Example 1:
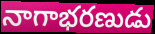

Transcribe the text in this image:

నాగాభరణుడు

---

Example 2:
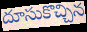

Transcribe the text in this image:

దూసుకొచ్చిన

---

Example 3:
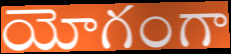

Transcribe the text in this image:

యోగంగా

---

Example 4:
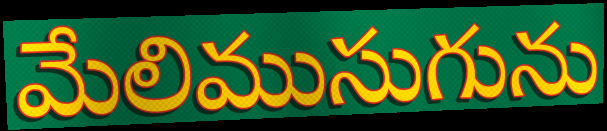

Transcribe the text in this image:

మేలిముసుగును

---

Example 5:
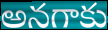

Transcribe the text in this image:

అనగాకు